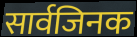
सार्वजिनक